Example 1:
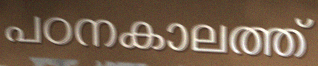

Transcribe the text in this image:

പഠനകാലത്ത്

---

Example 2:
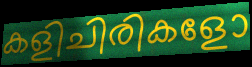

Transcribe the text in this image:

കളിചിരികളോ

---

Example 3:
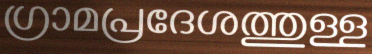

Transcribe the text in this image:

ഗ്രാമപ്രദേശത്തുള്ള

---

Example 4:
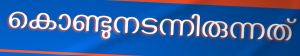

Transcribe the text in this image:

കൊണ്ടുനടന്നിരുന്നത്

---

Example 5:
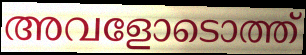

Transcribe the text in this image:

അവളോടൊത്ത്